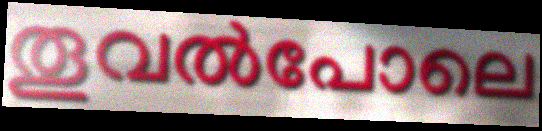
തൂവൽപോലെ